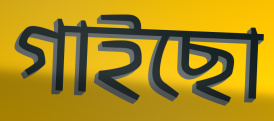
গাইছো